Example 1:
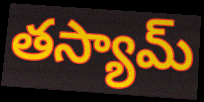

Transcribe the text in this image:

తస్యామ్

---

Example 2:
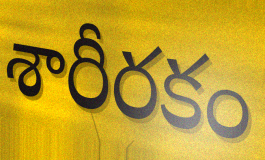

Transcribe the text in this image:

శారీరకం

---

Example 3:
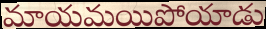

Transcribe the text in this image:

మాయమయిపోయాడు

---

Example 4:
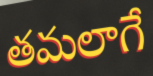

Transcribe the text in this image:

తమలాగే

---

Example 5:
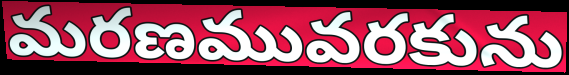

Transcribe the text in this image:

మరణమువరకును